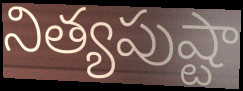
నిత్యపుష్టా